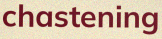
chastening